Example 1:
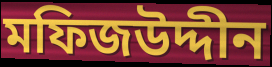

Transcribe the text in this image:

মফিজউদ্দীন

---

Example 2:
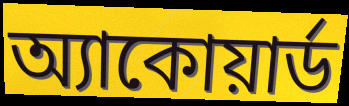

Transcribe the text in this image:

অ্যাকোয়ার্ড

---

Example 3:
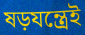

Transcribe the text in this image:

ষড়যন্ত্রেই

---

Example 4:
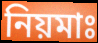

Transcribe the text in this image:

নিয়মাঃ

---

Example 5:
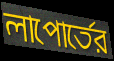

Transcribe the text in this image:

লাপোর্তের